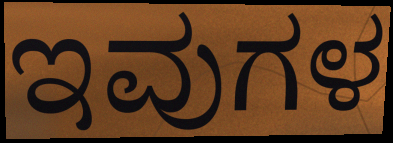
ಇವುಗಳ